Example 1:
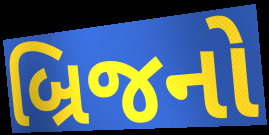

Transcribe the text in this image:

બ્રિજનો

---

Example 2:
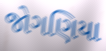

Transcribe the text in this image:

જોગણિયા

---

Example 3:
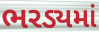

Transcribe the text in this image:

ભરડ્યમાં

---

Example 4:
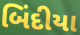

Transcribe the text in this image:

બિંદીયા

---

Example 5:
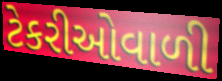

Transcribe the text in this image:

ટેકરીઓવાળી